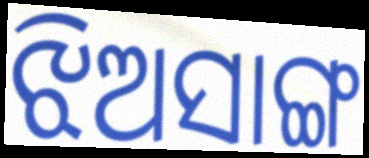
ଝିଅସାଙ୍ଗ